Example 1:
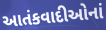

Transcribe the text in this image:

આતંકવાદીઓનાં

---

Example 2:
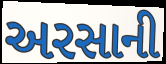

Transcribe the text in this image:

અરસાની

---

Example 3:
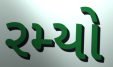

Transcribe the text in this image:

રમ્યો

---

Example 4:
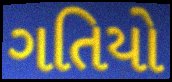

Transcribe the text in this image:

ગતિયો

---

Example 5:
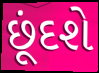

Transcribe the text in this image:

છૂંદશે